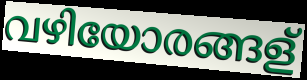
വഴിയോരങ്ങള്